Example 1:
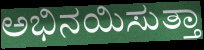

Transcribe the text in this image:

ಅಭಿನಯಿಸುತ್ತಾ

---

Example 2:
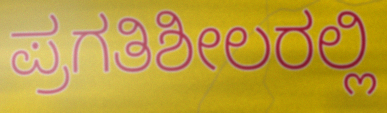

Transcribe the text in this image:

ಪ್ರಗತಿಶೀಲರಲ್ಲಿ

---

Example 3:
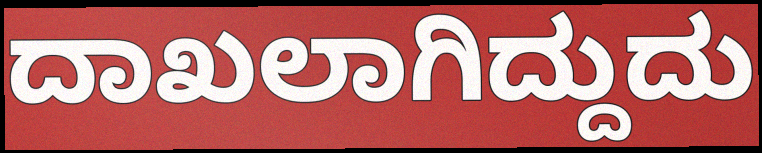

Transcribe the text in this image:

ದಾಖಲಾಗಿದ್ದುದು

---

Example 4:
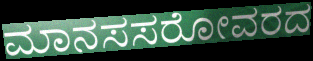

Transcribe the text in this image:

ಮಾನಸಸರೋವರದ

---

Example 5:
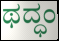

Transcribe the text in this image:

ಥದ್ಧಂ